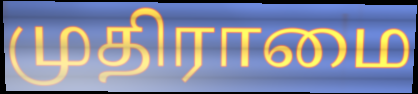
முதிராமை